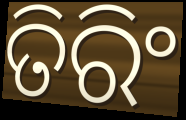
ତିରିଂ